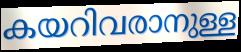
കയറിവരാനുള്ള